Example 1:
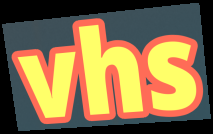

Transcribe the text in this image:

vhs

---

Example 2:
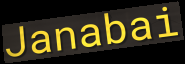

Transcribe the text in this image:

Janabai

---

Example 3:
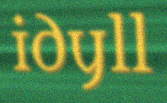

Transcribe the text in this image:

idyll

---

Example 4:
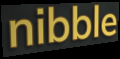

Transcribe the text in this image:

nibble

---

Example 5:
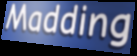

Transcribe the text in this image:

Madding